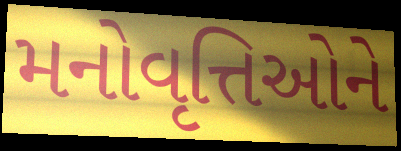
મનોવૃત્તિઓને